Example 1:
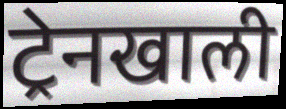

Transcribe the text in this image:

ट्रेनखाली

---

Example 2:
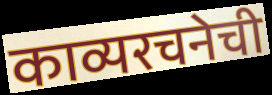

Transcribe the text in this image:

काव्यरचनेची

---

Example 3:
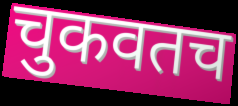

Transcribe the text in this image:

चुकवतच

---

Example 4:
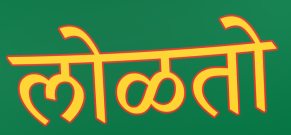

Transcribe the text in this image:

लोळतो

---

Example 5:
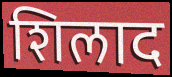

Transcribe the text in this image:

शिलाद